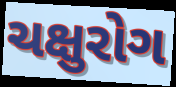
ચક્ષુરોગ